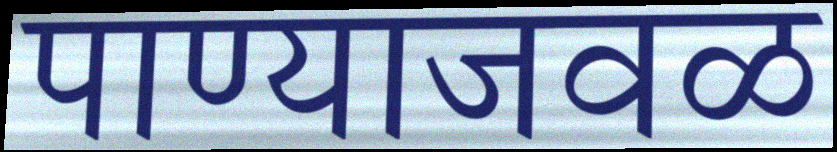
पाण्याजवळ